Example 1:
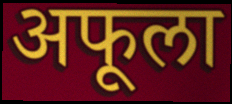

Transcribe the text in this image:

अफूला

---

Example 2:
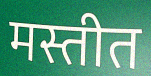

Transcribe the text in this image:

मस्तीत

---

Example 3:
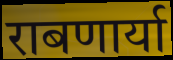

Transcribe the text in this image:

राबणार्या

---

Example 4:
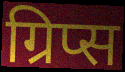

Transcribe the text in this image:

ग्रिप्स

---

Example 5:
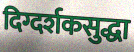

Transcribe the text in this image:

दिग्दर्शकसुद्धा